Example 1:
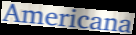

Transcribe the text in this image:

Americana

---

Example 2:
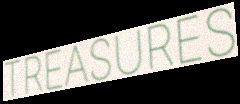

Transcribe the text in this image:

TREASURES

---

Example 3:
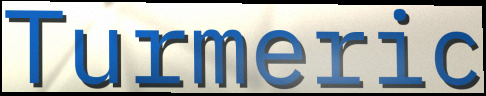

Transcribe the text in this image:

Turmeric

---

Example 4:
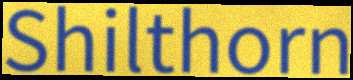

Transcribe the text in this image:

Shilthorn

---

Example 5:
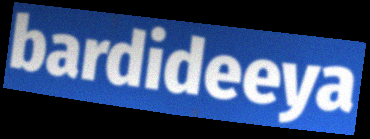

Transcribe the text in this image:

bardideeya